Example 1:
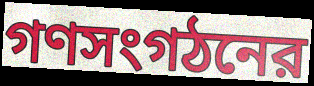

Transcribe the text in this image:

গণসংগঠনের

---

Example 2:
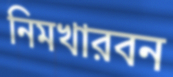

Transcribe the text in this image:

নিমখারবন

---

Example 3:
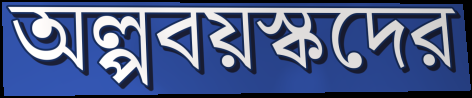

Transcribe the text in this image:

অল্পবয়স্কদের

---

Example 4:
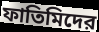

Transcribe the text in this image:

ফাতিমিদের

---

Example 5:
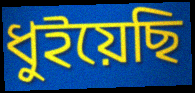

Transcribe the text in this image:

ধুইয়েছি